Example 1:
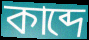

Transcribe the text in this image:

কাব্দে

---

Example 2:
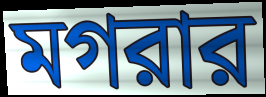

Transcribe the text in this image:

মগরার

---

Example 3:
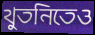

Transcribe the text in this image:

থুতনিতেও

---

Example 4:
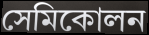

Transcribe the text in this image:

সেমিকোলন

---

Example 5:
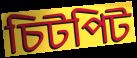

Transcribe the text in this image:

চিটপিট